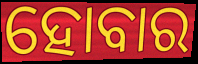
ହୋବାର